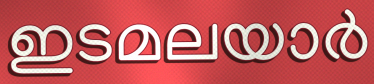
ഇടമലയാർ